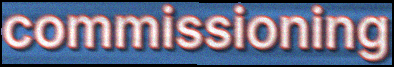
commissioning